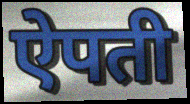
ऐपती